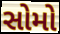
સોમો